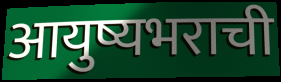
आयुष्यभराची